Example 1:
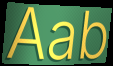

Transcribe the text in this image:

Aab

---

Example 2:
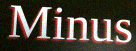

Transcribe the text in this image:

Minus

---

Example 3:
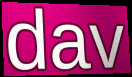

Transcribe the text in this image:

dav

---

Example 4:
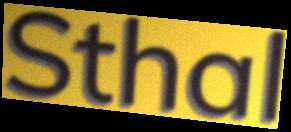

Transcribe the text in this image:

Sthal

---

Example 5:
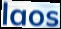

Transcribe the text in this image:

laos